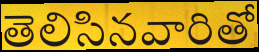
తెలిసినవారితో